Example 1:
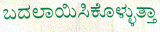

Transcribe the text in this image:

ಬದಲಾಯಿಸಿಕೊಳ್ಳುತ್ತಾ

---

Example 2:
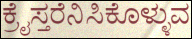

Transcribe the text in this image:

ಕ್ರೈಸ್ತರೆನಿಸಿಕೊಳ್ಳುವ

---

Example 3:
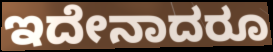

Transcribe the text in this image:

ಇದೇನಾದರೂ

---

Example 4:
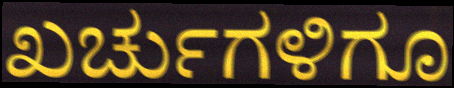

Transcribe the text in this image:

ಖರ್ಚುಗಳಿಗೂ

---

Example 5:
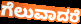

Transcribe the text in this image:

ಗೆಲುವಾದರೆ